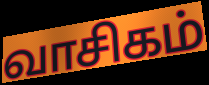
வாசிகம்